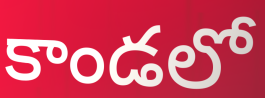
కాండలో